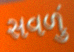
સવળું